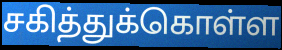
சகித்துக்கொள்ள